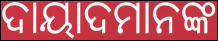
ଦାୟାଦମାନଙ୍କ